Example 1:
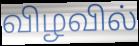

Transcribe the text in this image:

விழவில்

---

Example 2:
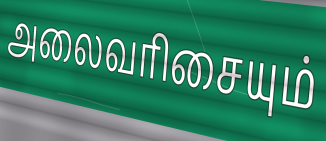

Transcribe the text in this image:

அலைவரிசையும்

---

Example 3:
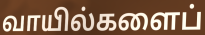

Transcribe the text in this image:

வாயில்களைப்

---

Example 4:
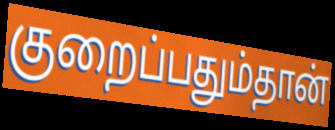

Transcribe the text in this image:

குறைப்பதும்தான்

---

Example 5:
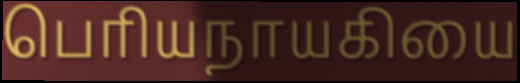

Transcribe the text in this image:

பெரியநாயகியை